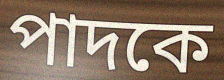
পাদকে